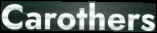
Carothers